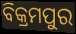
ବିକ୍ରମପୁର